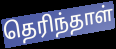
தெரிந்தாள்